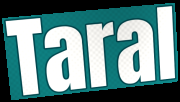
Taral